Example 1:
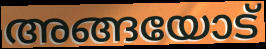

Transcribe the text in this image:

അങ്ങയോട്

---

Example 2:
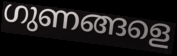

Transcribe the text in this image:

ഗുണങ്ങളെ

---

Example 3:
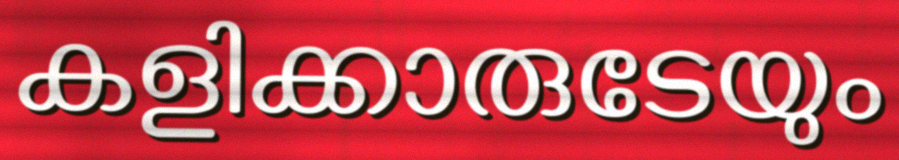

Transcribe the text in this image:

കളിക്കാരുടേയും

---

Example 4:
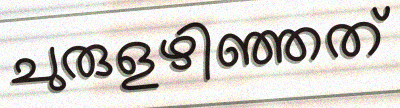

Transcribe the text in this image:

ചുരുളഴിഞ്ഞത്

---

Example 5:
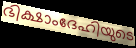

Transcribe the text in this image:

ഭിക്ഷാംദേഹിയുടെ